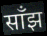
साँझ